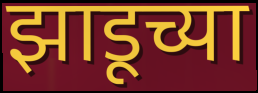
झाडूच्या